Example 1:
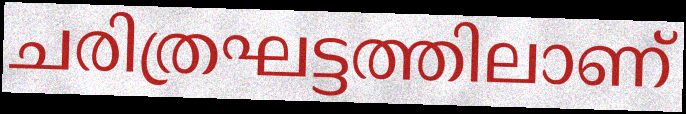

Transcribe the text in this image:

ചരിത്രഘട്ടത്തിലാണ്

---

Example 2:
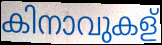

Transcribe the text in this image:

കിനാവുകള്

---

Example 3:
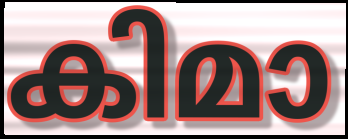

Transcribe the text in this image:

കിമാ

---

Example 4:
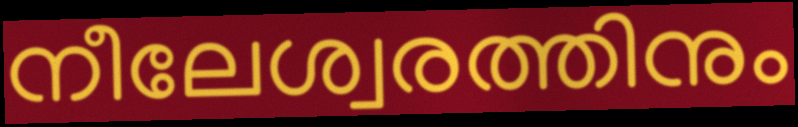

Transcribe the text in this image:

നീലേശ്വരത്തിനും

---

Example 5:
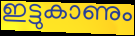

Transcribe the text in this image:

ഇട്ടുകാണും